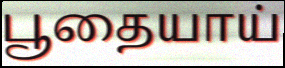
பூதையாய்